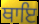
ਥਾਇ